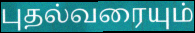
புதல்வரையும்